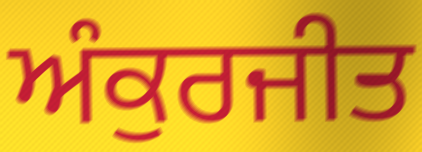
ਅੰਕੁਰਜੀਤ